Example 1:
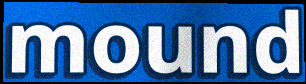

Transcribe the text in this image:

mound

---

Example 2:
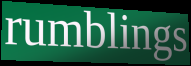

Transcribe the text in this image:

rumblings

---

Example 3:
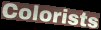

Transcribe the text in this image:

Colorists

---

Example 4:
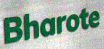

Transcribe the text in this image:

Bharote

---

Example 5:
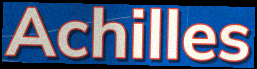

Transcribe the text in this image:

Achilles